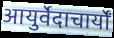
आयुर्वेदाचार्यों